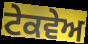
ਟੇਕਵੇਅ